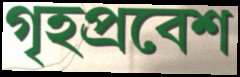
গৃহপ্রবেশ